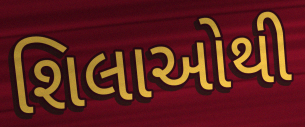
શિલાઓથી